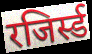
रजिर्स्ड